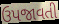
ઉપજાવતી